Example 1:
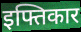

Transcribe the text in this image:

इफ्तिकार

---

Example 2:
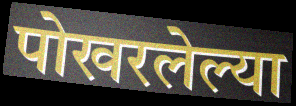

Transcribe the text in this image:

पोखरलेल्या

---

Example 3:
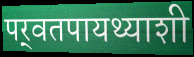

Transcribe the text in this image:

पर्वतपायथ्याशी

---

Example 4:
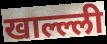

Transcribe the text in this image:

खाल्ल्ली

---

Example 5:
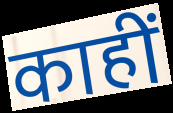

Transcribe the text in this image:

काहीं